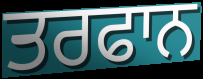
ਤਰਫਾਨ